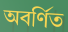
অবর্ণিত